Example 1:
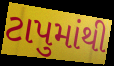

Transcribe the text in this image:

ટાપુમાંથી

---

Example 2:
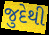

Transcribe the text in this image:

જુદેથી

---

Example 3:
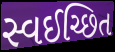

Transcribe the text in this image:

સ્વઈચ્છિત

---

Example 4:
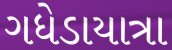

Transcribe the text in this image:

ગધેડાયાત્રા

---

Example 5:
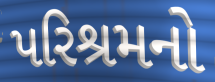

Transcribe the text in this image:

પરિશ્રમનો